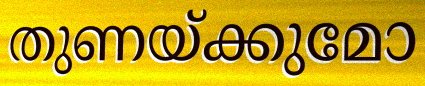
തുണയ്ക്കുമോ